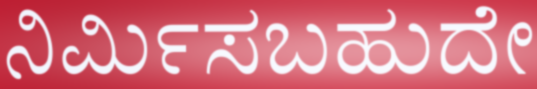
ನಿರ್ಮಿಸಬಹುದೇ